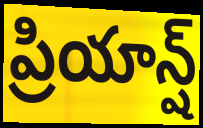
ప్రియాన్ష్